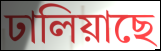
ঢালিয়াছে